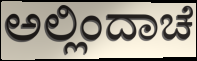
ಅಲ್ಲಿಂದಾಚೆ